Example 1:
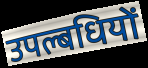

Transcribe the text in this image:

उपल्बधियों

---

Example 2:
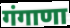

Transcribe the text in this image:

गंगाणा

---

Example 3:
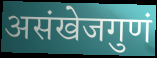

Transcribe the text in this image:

असंखेजगुणं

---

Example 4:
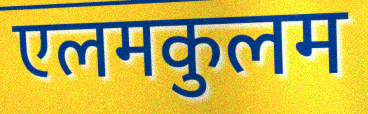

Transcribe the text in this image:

एलमकुलम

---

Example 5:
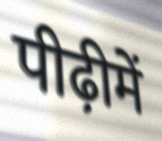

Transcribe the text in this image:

पीढ़ीमें